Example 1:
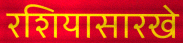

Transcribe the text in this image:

रशियासारखे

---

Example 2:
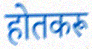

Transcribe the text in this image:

होतकरू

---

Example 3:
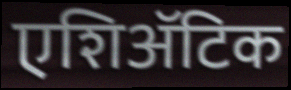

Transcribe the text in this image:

एशिॲटिक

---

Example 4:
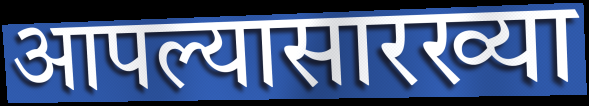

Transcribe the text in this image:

आपल्यासारख्या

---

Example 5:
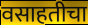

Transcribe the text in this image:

वसाहतीचा